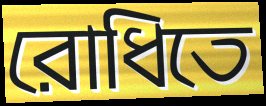
রোধিতে